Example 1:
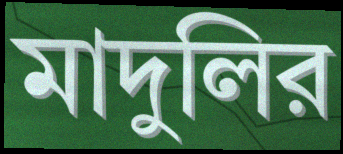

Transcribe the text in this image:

মাদুলির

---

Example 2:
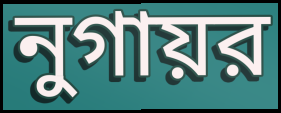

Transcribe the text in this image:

নুগায়র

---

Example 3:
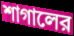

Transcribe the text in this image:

শাগালের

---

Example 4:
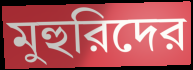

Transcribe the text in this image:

মুহুরিদের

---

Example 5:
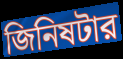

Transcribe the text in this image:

জিনিষটার